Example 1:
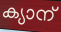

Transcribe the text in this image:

ക്യാന്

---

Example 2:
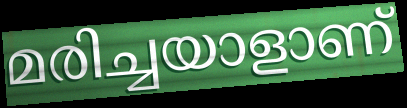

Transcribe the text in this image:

മരിച്ചയാളാണ്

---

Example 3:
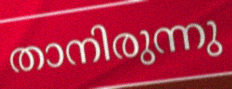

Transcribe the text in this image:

താനിരുന്നു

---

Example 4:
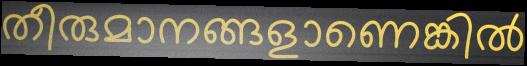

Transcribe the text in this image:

തീരുമാനങ്ങളാണെങ്കിൽ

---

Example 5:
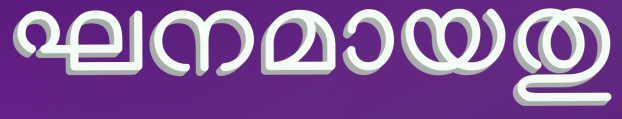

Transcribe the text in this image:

ഘനമായതു